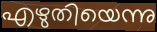
എഴുതിയെന്നു